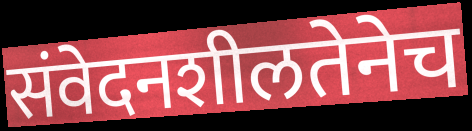
संवेदनशीलतेनेच